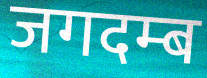
जगदम्ब